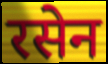
रसेन